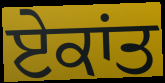
ਏਕਾਂਤ